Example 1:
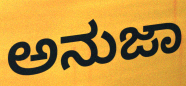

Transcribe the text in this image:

ಅನುಜಾ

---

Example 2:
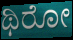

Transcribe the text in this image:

ಥಿರೋ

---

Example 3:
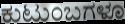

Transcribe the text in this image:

ಕುಟುಂಬಗಳೂ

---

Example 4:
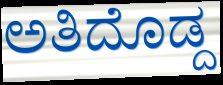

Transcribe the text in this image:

ಅತಿದೊಡ್ದ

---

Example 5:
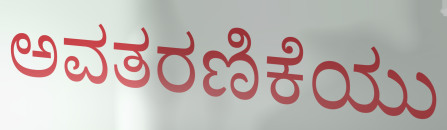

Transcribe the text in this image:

ಅವತರಣಿಕೆಯು